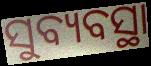
ସୁବ୍ୟବସ୍ଥା